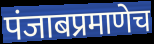
पंजाबप्रमाणेच